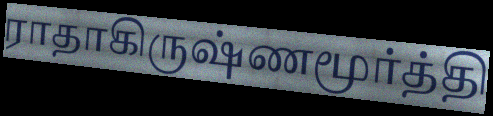
ராதாகிருஷ்ணமூர்த்தி